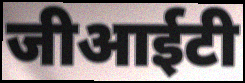
जीआईटी